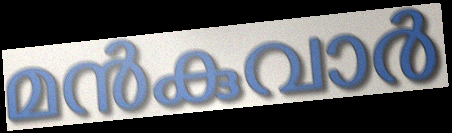
മൻകുവാർ